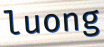
luong